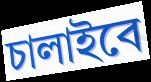
চালাইবে